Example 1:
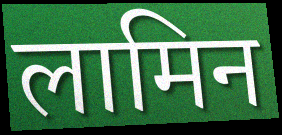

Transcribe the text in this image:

लामिन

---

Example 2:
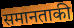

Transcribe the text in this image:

समानताकी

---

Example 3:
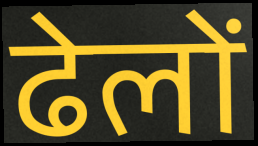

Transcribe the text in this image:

ढेलों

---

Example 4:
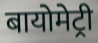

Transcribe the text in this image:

बायोमेट्री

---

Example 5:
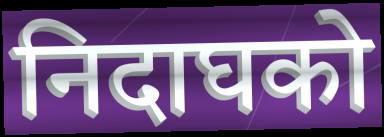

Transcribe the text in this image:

निदाघको